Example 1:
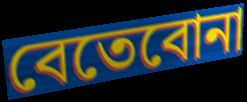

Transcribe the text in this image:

বেতেবোনা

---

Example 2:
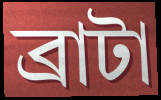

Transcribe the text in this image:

ব্রাটা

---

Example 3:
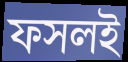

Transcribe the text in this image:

ফসলই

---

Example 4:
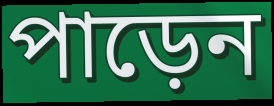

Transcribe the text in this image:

পাড়েন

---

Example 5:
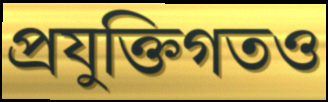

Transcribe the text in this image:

প্রযুক্তিগতও